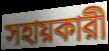
সহায়কারী